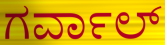
ಗರ್ವಾಲ್